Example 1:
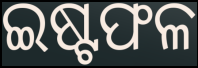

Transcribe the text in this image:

ଇଷ୍ଟଫଳ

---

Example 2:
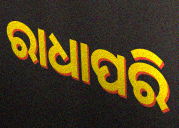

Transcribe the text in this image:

ରାଧାପରି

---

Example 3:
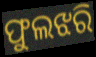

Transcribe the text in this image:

ଫୁଲଝରି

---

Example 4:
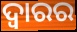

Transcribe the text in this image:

ଦ୍ୱାରର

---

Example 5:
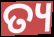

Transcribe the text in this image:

ତ୍ୟ